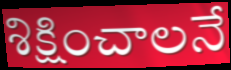
శిక్షించాలనే